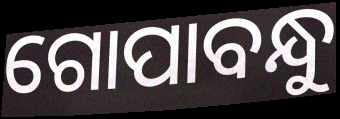
ଗୋପାବନ୍ଧୁ